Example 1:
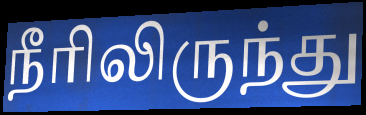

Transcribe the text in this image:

நீரிலிருந்து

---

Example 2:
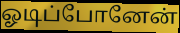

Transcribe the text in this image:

ஓடிப்போனேன்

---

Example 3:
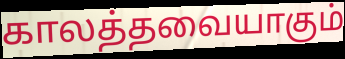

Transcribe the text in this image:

காலத்தவையாகும்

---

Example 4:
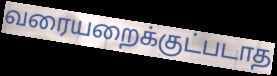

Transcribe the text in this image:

வரையறைக்குட்படாத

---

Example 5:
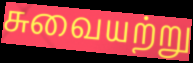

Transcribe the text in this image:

சுவையற்று